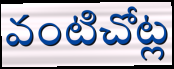
వంటిచోట్ల